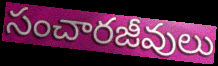
సంచారజీవులు